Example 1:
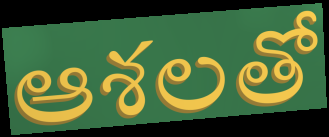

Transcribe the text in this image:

ఆశలతో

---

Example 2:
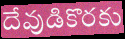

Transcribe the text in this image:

దేవుడికొరకు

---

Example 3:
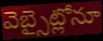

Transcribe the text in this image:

వెబ్సైట్లోనూ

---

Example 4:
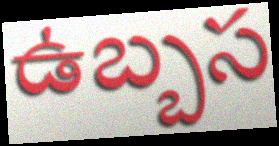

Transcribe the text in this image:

ఉబ్బస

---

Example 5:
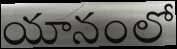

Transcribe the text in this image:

యానంలో